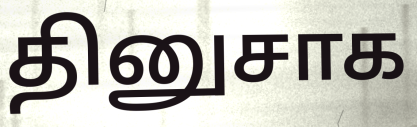
தினுசாக